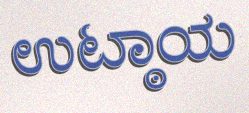
ಉಟ್ಠಾಯ